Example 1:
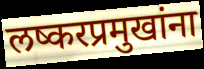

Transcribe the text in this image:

लष्करप्रमुखांना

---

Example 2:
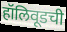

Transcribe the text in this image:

हॉलिवूडची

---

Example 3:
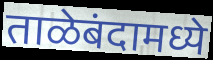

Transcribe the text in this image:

ताळेबंदामध्ये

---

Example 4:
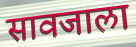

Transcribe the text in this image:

सावजाला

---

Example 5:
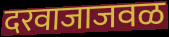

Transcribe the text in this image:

दरवाजाजवळ